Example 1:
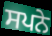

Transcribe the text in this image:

ਸਪਨੇ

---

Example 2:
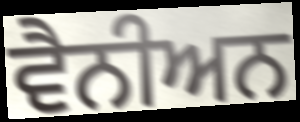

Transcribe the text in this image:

ਵੈਨੀਅਨ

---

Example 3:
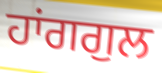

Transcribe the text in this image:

ਹਾਂਗਗੁਲ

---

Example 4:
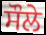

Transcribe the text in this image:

ਸੌਲੇ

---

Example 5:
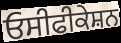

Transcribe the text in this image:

ਓਸੀਫੀਕੇਸ਼ਨ